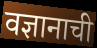
वज्ञानाची